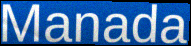
Manada